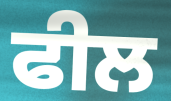
ਫੀਲ